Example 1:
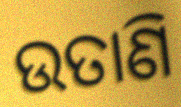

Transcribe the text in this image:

ଉତାଣି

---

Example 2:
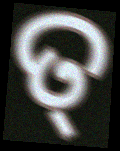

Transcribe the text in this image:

ତ୍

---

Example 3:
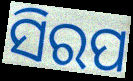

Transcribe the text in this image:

ସିରପ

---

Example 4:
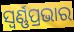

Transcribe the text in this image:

ସ୍ୱର୍ଣ୍ଣପ୍ରଭାର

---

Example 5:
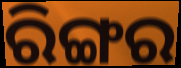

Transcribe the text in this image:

ରିଙ୍ଗର